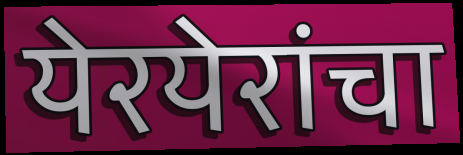
येरयेरांचा